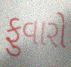
ફુવારો